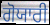
ਗੋਯਾਰੀ